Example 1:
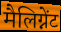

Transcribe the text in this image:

मैलिग्नेंट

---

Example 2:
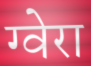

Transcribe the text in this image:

ग्वेरा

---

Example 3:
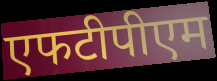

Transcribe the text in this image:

एफटीपीएम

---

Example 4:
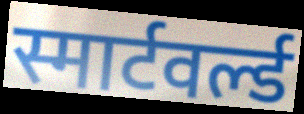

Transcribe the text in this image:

स्मार्टवर्ल्ड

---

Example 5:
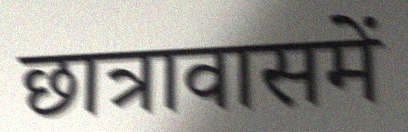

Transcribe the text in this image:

छात्रावासमें